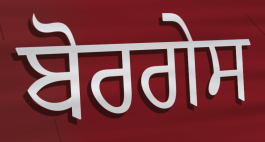
ਬੋਰਗੇਸ